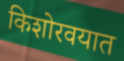
किशोरवयात